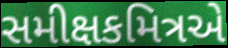
સમીક્ષકમિત્રએ